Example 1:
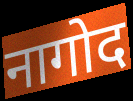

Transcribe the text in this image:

नागोद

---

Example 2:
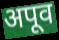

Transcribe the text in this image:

अपूव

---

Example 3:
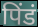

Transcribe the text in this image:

पिंडं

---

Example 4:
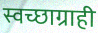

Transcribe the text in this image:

स्वच्छाग्राही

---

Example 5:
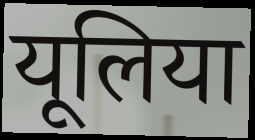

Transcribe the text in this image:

यूलिया